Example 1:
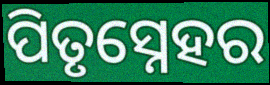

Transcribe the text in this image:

ପିତୃସ୍ନେହର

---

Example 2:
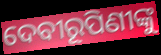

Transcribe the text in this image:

ଦେବୀରୂପିଣୀଙ୍କୁ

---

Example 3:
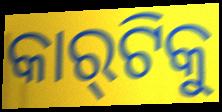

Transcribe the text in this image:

କାର୍‍ଟିକୁ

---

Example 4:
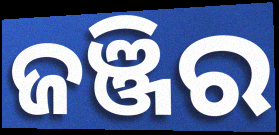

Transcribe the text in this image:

ଜଞ୍ଜିର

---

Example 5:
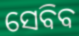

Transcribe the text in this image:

ସେବିବ